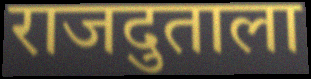
राजदुताला